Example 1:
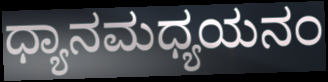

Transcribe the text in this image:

ಧ್ಯಾನಮಧ್ಯಯನಂ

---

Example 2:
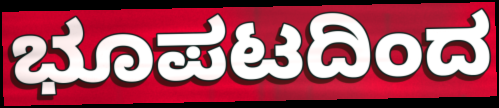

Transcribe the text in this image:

ಭೂಪಟದಿಂದ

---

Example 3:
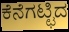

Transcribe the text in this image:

ಕೆನೆಗಟ್ಟಿದ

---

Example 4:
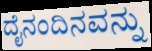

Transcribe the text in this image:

ದೈನಂದಿನವನ್ನು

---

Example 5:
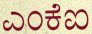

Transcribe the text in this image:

ಎಂಕೆಐ